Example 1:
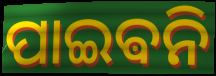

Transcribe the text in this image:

ପାଇଵନି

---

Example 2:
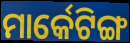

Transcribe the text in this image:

ମାର୍କେଟିଙ୍ଗ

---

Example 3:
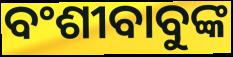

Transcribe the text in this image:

ବଂଶୀବାବୁଙ୍କ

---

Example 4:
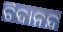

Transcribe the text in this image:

ଚିଦାନନ୍ଦ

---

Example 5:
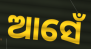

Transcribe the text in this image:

ଆସେଁ